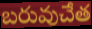
బరువుచేత